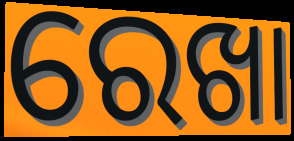
ରେଖା